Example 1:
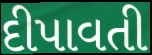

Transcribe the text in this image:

દીપાવતી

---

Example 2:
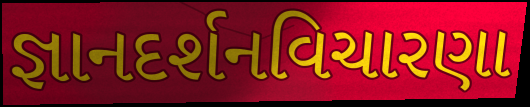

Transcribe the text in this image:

જ્ઞાનદર્શનવિચારણા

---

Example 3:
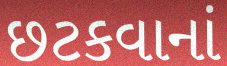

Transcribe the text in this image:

છટકવાનાં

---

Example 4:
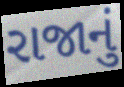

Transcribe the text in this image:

રાજાનું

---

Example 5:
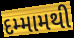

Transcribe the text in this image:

દમ્મામથી